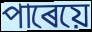
পাৰেয়ে